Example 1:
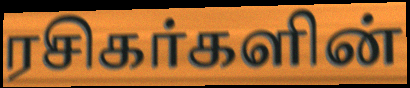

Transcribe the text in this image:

ரசிகர்களின்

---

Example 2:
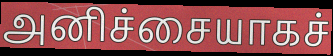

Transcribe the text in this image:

அனிச்சையாகச்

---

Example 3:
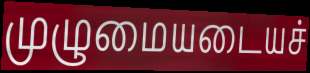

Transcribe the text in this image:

முழுமையடையச்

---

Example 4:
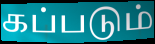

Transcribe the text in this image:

கப்படும்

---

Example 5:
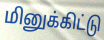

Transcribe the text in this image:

மினுக்கிட்டு